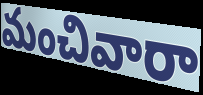
మంచివారా